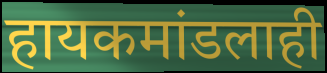
हायकमांडलाही